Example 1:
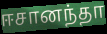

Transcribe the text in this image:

ஈசானந்தா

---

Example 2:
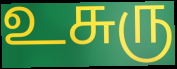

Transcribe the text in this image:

உசுரு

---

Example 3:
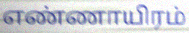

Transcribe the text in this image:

எண்ணாயிரம்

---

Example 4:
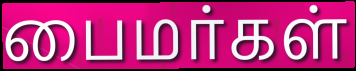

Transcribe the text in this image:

பைமர்கள்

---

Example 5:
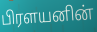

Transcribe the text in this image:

பிரளயனின்